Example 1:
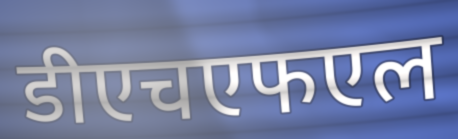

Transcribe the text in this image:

डीएचएफएल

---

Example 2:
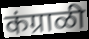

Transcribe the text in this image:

कंग्राळी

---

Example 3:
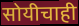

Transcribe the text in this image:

सोयीचाही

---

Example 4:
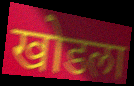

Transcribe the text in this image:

खोडला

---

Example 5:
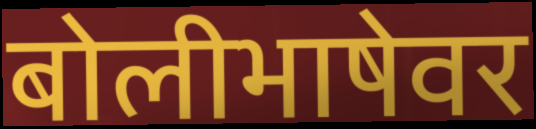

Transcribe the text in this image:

बोलीभाषेवर